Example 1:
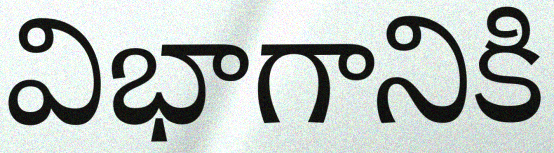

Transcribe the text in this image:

విభాగానికి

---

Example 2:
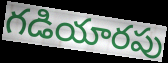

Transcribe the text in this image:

గడియారపు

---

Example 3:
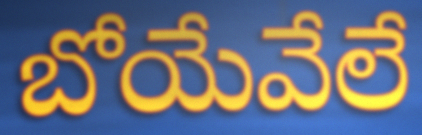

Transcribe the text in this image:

బోయేవేలే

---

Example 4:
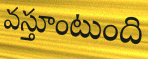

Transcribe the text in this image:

వస్తూంటుంది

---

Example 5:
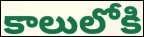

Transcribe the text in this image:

కాలులోకి